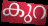
കുറ